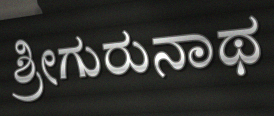
ಶ್ರೀಗುರುನಾಥ